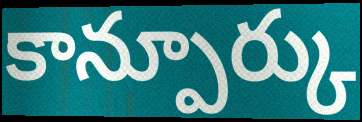
కాన్పూర్కు